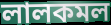
লালকমল